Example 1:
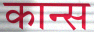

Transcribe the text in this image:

कान्‍स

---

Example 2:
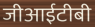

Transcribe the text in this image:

जीआईटीबी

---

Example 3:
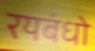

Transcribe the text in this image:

रयबंधो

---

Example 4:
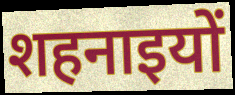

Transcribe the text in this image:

शहनाइयों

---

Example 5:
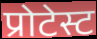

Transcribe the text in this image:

प्रोटेस्ट